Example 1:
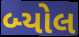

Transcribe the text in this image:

બ્યોલ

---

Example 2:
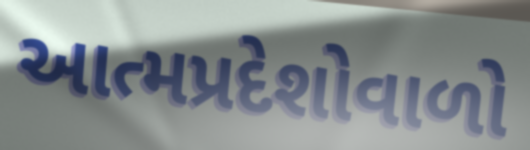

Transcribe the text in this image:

આત્મપ્રદેશોવાળો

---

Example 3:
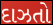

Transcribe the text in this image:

દાઝતો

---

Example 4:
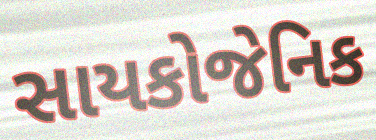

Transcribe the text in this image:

સાયકોજેનિક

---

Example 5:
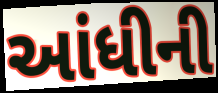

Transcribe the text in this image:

આંધીની